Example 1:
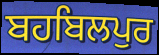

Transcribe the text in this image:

ਬਹਬਿਲਪੁਰ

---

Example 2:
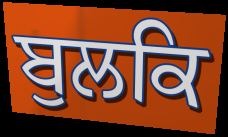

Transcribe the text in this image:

ਬੁਲਕਿ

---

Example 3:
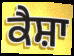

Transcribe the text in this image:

ਕੈਸ਼ਾ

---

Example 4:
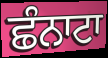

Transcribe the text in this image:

ਛੰਨਾਟਾ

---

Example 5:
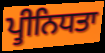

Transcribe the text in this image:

ਪ੍ਤੀਨਿਧਤਾ